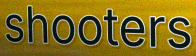
shooters